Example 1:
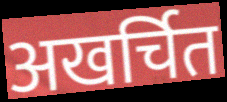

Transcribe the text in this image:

अखर्चित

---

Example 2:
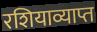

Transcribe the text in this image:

रशियाव्याप्त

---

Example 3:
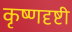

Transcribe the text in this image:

कृष्णदृष्टी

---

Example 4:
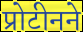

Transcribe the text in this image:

प्रोटीनने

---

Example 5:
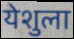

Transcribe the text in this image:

येशुला